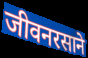
जीवनरसाने